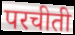
परचीती